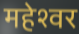
महेश्वर